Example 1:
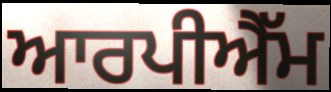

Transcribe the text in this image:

ਆਰਪੀਐੱਮ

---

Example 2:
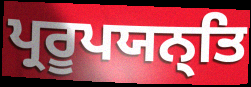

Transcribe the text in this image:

ਪ੍ਰਰੂਪਯਨ੍ਤਿ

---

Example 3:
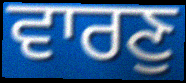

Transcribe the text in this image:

ਵਾਰਣੁ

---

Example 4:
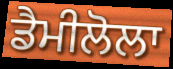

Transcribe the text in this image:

ਡੈਮੀਲੋਲਾ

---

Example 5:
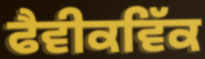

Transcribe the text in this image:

ਫੈਵੀਕਵਿੱਕ